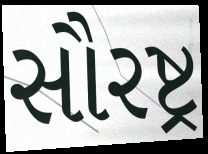
સૌરષ્ટ્ર